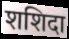
शशिदा